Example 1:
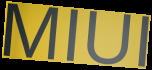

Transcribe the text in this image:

MIUI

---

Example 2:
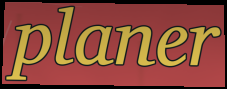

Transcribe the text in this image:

planer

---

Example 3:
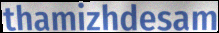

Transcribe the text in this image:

thamizhdesam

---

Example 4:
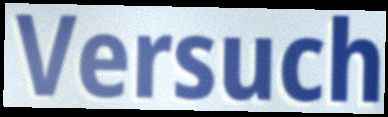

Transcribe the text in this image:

Versuch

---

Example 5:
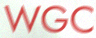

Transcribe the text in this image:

WGC